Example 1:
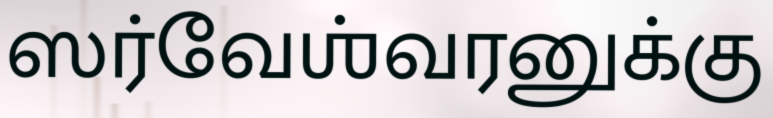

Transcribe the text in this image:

ஸர்வேஶ்வரனுக்கு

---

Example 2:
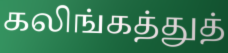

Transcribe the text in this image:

கலிங்கத்துத்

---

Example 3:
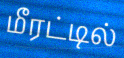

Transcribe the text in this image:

மீரட்டில்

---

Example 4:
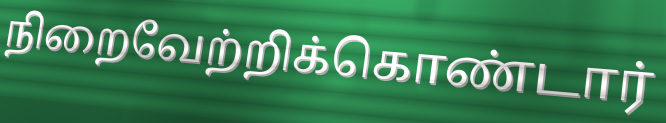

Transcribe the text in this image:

நிறைவேற்றிக்கொண்டார்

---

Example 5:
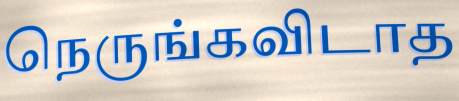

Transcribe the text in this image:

நெருங்கவிடாத